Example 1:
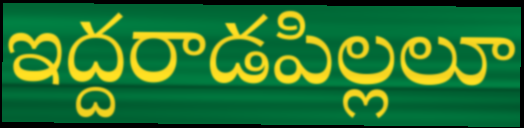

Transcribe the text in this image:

ఇద్దరాడపిల్లలూ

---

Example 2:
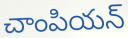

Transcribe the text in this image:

చాంపియన్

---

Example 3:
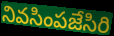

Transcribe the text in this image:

నివసింపజేసిరి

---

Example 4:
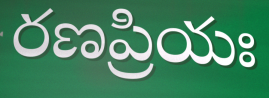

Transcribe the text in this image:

రణప్రియః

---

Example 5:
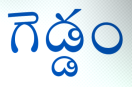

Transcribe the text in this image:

గెడ్డం